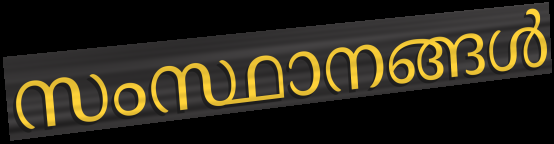
സംസ്ഥാനങ്ങൾ